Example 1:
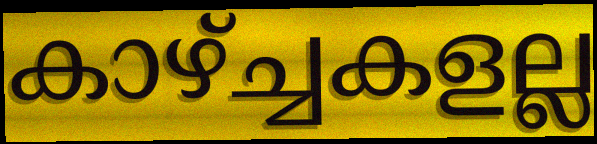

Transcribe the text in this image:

കാഴ്ച്ചകളല്ല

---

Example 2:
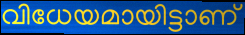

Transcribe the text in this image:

വിധേയമായിട്ടാണ്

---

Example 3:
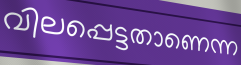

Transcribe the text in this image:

വിലപ്പെട്ടതാണെന്ന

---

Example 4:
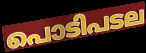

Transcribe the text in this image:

പൊടിപടല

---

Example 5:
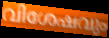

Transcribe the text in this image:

വിശേഷവും